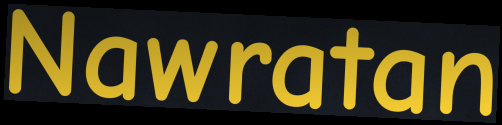
Nawratan